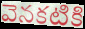
వెనకటికి